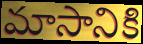
మాసానికి